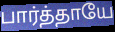
பார்த்தாயே